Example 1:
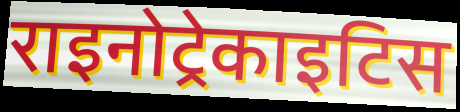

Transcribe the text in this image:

राइनोट्रेकाइटिस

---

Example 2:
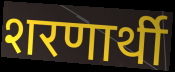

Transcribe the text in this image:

शरणार्थी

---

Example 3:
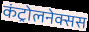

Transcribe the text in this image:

कंट्रोलनेक्सस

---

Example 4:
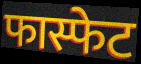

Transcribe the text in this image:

फास्फेट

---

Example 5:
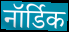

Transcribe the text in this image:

नॉर्डिक